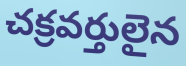
చక్రవర్తులైన